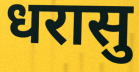
धरासु